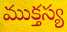
ముక్తస్య